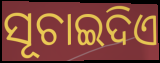
ସୂଚାଇଦିଏ